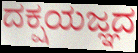
ದಕ್ಷಯಜ್ಞದ